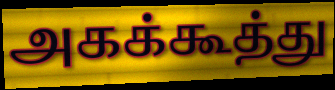
அகக்கூத்து